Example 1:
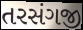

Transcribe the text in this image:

તરસંગજી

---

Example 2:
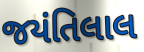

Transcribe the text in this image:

જયંતિલાલ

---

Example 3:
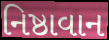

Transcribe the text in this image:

નિષ્ઠાવાન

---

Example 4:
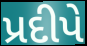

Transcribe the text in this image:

પ્રદીપે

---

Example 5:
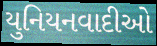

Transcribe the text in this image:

યુનિયનવાદીઓ